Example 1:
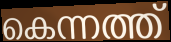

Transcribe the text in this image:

കെന്നത്ത്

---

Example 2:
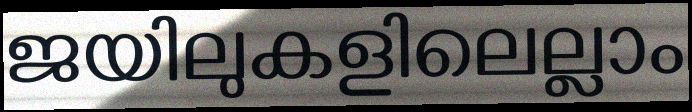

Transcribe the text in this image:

ജയിലുകളിലെല്ലാം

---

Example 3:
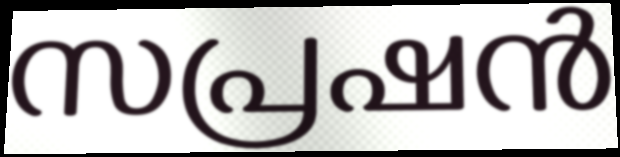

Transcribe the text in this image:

സപ്രഷൻ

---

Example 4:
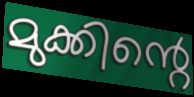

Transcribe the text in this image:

മുക്കിന്റെ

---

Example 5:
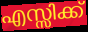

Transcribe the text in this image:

എസ്സിക്ക്